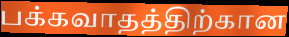
பக்கவாதத்திற்கான